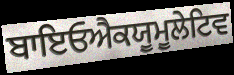
ਬਾਇਓਐਕਯੂਮੂਲੇਟਿਵ